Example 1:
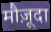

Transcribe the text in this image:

मौज़ूदा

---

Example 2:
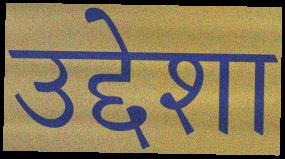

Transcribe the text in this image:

उद्देशा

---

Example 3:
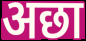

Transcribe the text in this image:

अछा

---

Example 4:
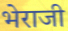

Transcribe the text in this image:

भेराजी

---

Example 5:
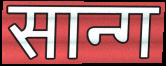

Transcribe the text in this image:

सान्ग